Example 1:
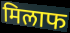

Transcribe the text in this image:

मिलाफ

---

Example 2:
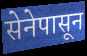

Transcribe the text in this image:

सेनेपासून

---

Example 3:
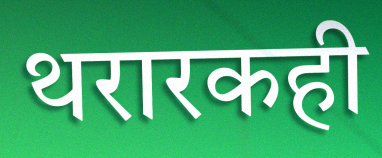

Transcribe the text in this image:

थरारकही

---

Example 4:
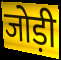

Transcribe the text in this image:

जोड़ी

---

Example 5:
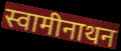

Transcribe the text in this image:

स्वामीनाथन